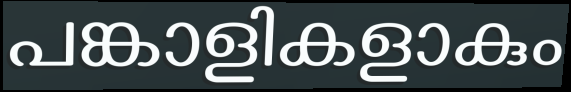
പങ്കാളികളാകും